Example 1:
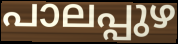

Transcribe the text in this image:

പാലപ്പുഴ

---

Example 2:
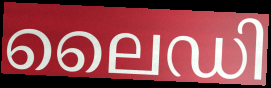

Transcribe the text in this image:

ലൈഡി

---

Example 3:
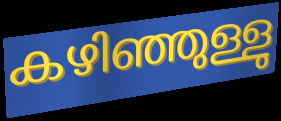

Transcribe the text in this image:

കഴിഞ്ഞുള്ളു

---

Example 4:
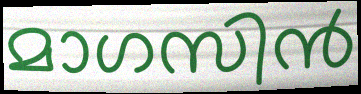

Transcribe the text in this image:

മാഗസിൻ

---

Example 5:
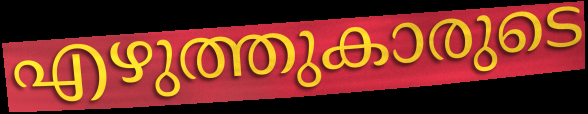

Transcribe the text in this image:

എഴുത്തുകാരുടെ